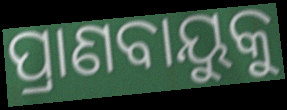
ପ୍ରାଣବାୟୁକୁ